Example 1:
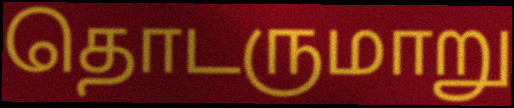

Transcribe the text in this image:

தொடருமாறு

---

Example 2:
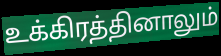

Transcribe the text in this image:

உக்கிரத்தினாலும்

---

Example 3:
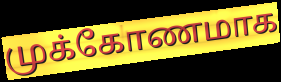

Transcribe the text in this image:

முக்கோணமாக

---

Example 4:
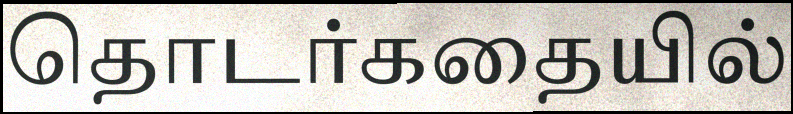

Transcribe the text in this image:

தொடர்கதையில்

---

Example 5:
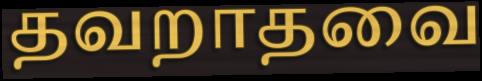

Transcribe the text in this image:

தவறாதவை